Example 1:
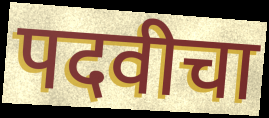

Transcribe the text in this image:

पदवीचा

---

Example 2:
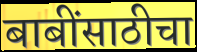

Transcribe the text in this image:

बाबींसाठीचा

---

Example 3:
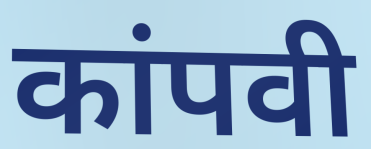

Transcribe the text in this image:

कांपवी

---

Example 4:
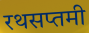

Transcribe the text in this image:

रथसप्तमी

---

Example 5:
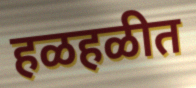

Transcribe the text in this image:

हळहळीत